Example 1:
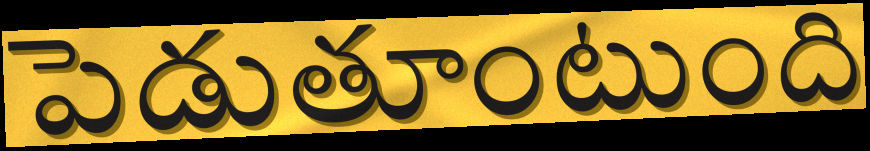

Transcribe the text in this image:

పెడుతూంటుంది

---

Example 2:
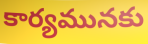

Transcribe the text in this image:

కార్యమునకు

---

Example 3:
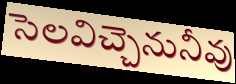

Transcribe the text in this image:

సెలవిచ్చెనునీవు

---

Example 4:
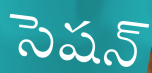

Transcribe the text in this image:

సెషన్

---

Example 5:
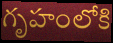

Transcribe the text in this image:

గృహంలోకి